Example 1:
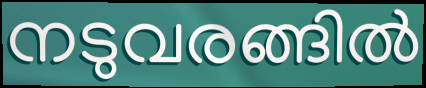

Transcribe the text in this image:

നടുവരങ്ങിൽ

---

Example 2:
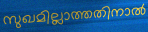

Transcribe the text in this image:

സുഖമില്ലാത്തതിനാൽ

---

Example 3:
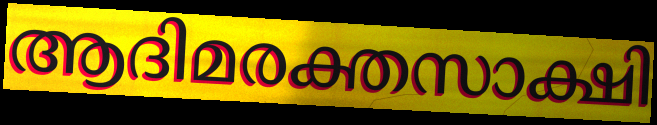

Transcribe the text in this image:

ആദിമരക്തസാക്ഷി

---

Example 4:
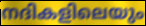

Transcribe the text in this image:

നദികളിലെയും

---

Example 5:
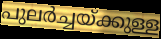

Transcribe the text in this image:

പുലർച്ചയ്ക്കുള്ള